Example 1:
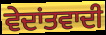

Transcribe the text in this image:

ਵੇਦਾਂਤਵਾਦੀ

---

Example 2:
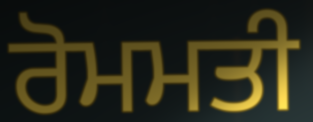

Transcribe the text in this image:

ਰੋਮਮਤੀ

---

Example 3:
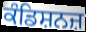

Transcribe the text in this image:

ਕੰਡਿਸ਼ਨਜ਼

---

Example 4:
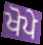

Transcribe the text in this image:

ਖੋਪੇ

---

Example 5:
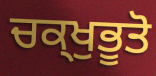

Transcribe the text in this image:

ਚਕ੍ਖੁਭੂਤੋ